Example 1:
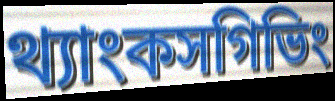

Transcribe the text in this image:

থ্যাংকসগিভিং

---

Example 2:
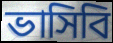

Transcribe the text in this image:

ভাসিবি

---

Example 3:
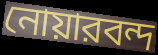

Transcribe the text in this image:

নোয়ারবন্দ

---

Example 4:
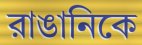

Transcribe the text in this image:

রাঙানিকে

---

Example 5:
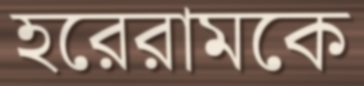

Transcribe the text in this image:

হরেরামকে